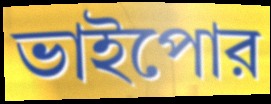
ভাইপোর